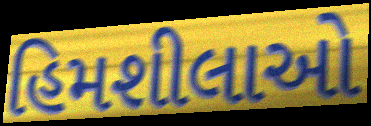
હિમશીલાઓ